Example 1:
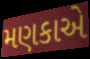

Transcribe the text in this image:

મણકાએ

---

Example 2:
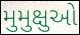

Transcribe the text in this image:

મુમુક્ષુઓ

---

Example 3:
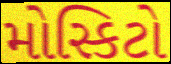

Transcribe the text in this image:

મોસ્કિટો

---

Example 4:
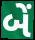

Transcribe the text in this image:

બેં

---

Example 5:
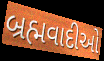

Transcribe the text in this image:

બ્રહ્મવાદીઓ